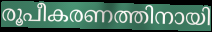
രൂപീകരണത്തിനായി